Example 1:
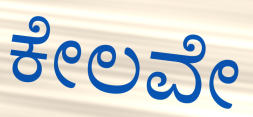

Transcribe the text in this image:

ಕೇಲವೇ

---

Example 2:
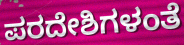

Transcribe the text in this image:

ಪರದೇಶಿಗಳಂತೆ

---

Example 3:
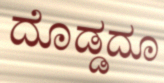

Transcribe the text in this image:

ದೊಡ್ಡದೂ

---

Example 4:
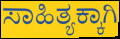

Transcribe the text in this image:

ಸಾಹಿತ್ಯಕ್ಕಾಗಿ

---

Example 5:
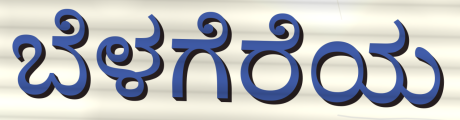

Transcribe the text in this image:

ಬೆಳಗೆರೆಯ